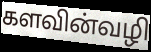
களவின்வழி